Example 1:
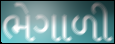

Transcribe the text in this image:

ભેગાળી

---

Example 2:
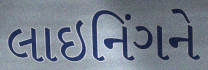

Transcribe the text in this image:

લાઇનિંગને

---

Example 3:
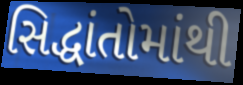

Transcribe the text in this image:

સિદ્ધાંતોમાંથી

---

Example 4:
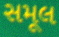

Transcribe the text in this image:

સમૂલ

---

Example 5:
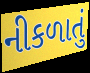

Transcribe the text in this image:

નીકળાતું